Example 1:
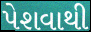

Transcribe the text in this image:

પેશવાથી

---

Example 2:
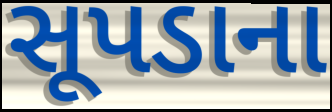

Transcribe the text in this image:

સૂપડાના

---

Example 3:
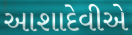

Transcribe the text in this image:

આશાદેવીએ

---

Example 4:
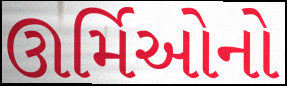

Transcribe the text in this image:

ઊર્મિઓનો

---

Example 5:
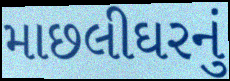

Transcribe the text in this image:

માછલીઘરનું